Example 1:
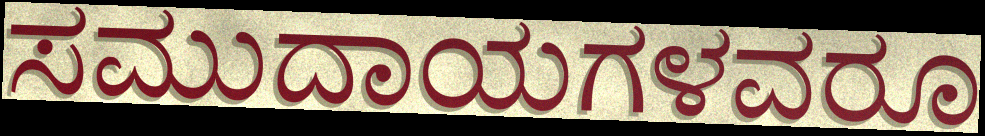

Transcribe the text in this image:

ಸಮುದಾಯಗಳವರೂ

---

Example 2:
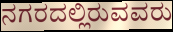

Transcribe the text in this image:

ನಗರದಲ್ಲಿರುವವರು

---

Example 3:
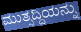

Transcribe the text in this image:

ಮುತ್ಸದ್ದಿಯನ್ನು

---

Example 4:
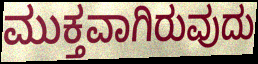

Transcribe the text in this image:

ಮುಕ್ತವಾಗಿರುವುದು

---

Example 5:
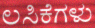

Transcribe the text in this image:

ಲಸಿಕೆಗಳು